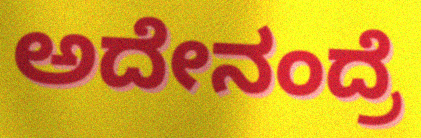
ಅದೇನಂದ್ರೆ